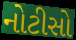
નોટીસો